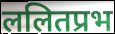
ललितप्रभ